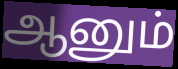
ஆனும்